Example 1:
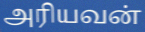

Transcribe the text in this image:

அரியவன்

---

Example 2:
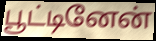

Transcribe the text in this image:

பூட்டினேன்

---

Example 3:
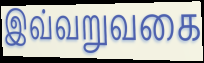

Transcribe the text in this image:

இவ்வறுவகை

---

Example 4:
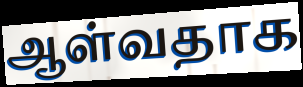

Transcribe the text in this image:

ஆள்வதாக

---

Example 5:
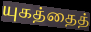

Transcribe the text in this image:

யுகத்தைத்